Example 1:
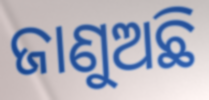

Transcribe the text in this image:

ଜାଣୁଅଛି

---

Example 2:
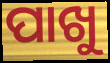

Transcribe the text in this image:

ପାଖୁ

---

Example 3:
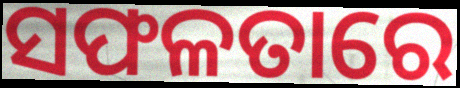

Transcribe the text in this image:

ସଫଳତାରେ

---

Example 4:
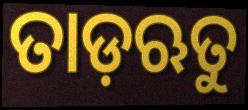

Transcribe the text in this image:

ତାଡ଼ଋତୁ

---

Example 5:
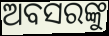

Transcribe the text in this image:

ଅବସରଙ୍କୁ